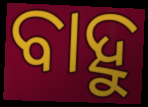
ବାହୁ